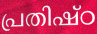
പ്രതിഷ്ഠ